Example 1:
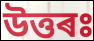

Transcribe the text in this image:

উত্তৰঃ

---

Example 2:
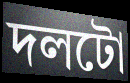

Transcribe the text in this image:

দলটো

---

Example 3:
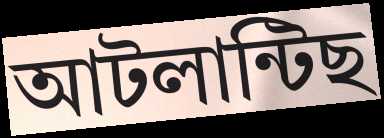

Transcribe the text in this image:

আটলান্টিছ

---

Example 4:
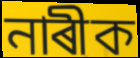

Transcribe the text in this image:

নাৰীক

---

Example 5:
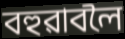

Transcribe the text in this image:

বহুৱাবলৈ